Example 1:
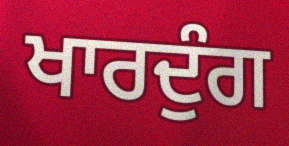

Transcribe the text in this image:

ਖਾਰਦੁੰਗ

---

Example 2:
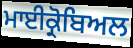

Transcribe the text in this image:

ਮਾਈਕ੍ਰੋਬਿਅਲ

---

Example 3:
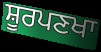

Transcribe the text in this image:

ਸ਼ੂਰਪਣਖਾ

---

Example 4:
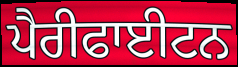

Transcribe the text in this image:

ਪੈਰੀਫਾਈਟਨ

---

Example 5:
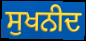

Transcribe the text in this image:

ਸੁਖਨੀਦ